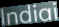
Indiai